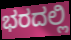
ಭರದಲ್ಲಿ